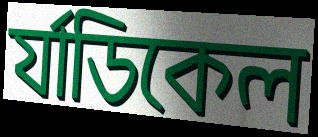
র্যাডিকেল